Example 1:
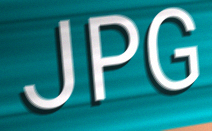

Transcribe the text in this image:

JPG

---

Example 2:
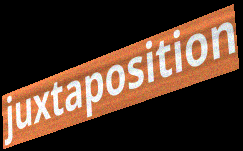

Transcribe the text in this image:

juxtaposition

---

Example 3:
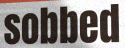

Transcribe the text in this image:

sobbed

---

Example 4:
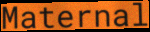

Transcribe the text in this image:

Maternal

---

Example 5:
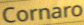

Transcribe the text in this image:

Cornaro